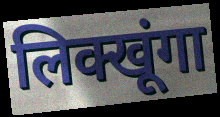
लिक्खूंगा